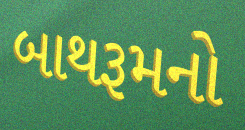
બાથરૂમનો